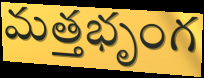
మత్తభృంగ